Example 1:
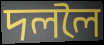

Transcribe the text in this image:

দললৈ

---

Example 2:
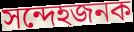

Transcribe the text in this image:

সন্দেহজনক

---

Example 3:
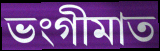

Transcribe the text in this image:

ভংগীমাত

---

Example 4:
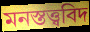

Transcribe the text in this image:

মনস্তত্ত্ববিদ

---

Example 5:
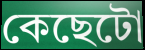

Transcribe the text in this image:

কেছেটো